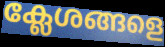
ക്ലേശങ്ങളെ